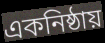
একনিষ্ঠায়